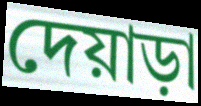
দেয়াড়া